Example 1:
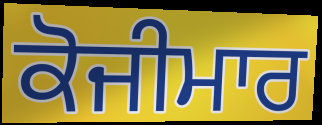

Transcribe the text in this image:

ਕੋਜੀਮਾਰ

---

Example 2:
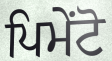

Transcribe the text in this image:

ਪਿਮੇਂਟੋ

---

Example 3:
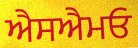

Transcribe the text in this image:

ਐਸਐਮਓ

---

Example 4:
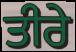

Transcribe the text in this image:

ਤੀਰੇ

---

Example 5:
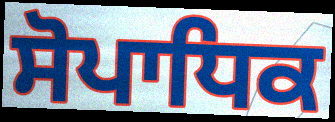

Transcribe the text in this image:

ਸੋਪਾਧਿਕ